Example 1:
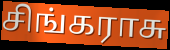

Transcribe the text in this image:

சிங்கராசு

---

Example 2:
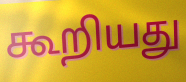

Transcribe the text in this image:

கூறியது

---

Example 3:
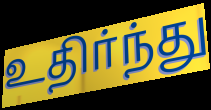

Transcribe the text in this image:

உதிர்ந்து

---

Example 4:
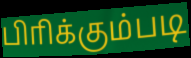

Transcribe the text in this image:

பிரிக்கும்படி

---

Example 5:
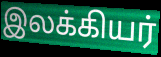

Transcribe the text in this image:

இலக்கியர்